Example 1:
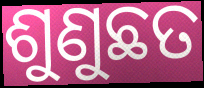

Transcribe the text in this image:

ଶୁଣୁଛତ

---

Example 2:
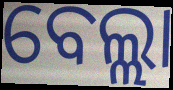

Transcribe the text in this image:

ବେଲ୍ଲା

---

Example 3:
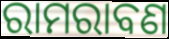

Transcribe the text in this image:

ରାମରାବଣ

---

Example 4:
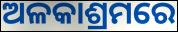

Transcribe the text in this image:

ଅଳକାଶ୍ରମରେ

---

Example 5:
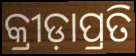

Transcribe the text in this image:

କ୍ରୀଡ଼ାପ୍ରତି